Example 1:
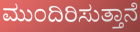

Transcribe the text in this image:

ಮುಂದಿರಿಸುತ್ತಾನೆ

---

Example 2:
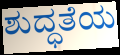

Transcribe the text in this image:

ಶುದ್ಧತೆಯ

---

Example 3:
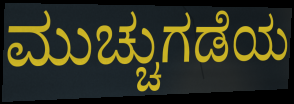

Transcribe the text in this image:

ಮುಚ್ಚುಗಡೆಯ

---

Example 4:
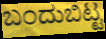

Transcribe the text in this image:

ಬಂದುಬಿಟ್ಟ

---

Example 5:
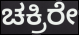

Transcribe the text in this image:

ಚಕ್ರಿರೇ